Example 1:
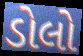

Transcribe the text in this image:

ડોલો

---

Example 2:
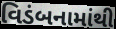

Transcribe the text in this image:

વિડંબનામાંથી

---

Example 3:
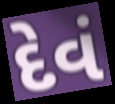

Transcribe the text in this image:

દેવં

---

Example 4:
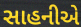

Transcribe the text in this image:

સાહનીએ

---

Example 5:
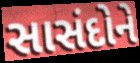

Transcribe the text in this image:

સાસંદોને